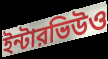
ইন্টারভিউও